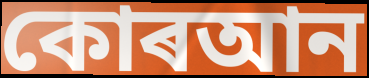
কোৰআন